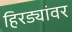
हिरड्यांवर